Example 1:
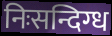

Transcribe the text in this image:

निःसन्दिग्ध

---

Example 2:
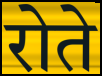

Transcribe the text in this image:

रोते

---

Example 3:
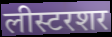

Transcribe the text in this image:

लीस्टरशर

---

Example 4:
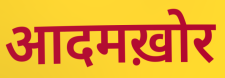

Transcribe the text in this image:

आदमख़ोर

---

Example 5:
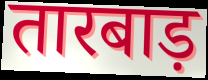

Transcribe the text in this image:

तारबाड़